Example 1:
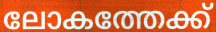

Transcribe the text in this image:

ലോകത്തേക്ക്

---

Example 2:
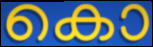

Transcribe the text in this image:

കൊ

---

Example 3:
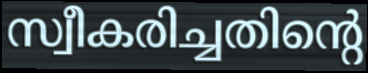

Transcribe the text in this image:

സ്വീകരിച്ചതിന്റെ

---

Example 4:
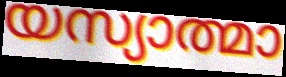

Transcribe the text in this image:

യസ്യാത്മാ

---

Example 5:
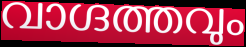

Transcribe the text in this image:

വാഗ്ദത്തവും